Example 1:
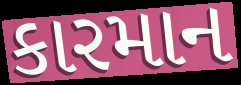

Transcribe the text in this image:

કારમાન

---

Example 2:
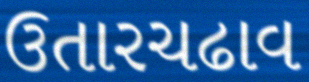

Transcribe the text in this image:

ઉતારચઢાવ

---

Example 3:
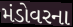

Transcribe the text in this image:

મંડોવરના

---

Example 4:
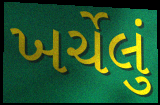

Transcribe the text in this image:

ખર્ચેલું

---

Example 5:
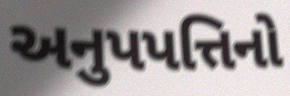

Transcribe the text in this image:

અનુપપત્તિનો